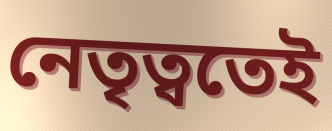
নেতৃত্বতেই